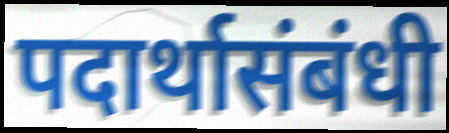
पदार्थासंबंधी